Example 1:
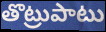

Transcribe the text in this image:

తొట్రుపాటు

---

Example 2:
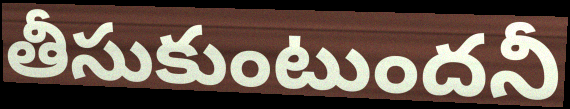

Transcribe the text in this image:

తీసుకుంటుందనీ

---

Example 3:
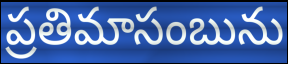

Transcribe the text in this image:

ప్రతిమాసంబును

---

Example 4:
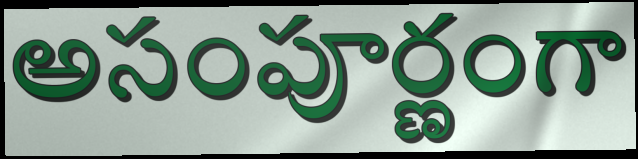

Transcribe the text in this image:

అసంపూర్ణంగా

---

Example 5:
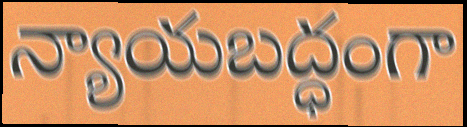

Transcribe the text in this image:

న్యాయబద్ధంగా